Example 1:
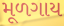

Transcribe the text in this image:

મૂળગાય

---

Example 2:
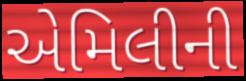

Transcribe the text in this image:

એમિલીની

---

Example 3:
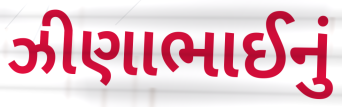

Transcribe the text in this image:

ઝીણાભાઈનું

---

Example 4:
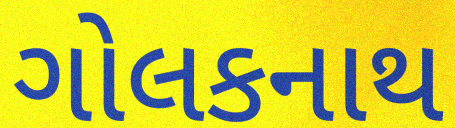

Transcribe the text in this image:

ગોલકનાથ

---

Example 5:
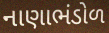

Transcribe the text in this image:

નાણાભંડોળ